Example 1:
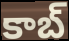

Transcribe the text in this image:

కాబ్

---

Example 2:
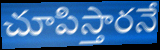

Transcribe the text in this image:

చూపిస్తారనే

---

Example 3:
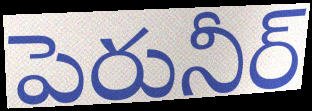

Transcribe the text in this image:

పెరునీర్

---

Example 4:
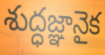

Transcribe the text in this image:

శుద్ధజ్ఞానైక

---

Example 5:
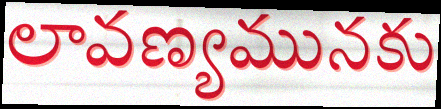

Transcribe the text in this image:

లావణ్యమునకు